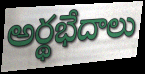
అర్థభేదాలు